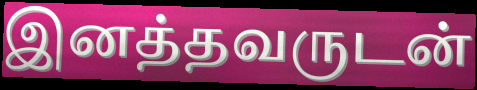
இனத்தவருடன்